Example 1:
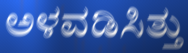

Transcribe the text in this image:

ಅಳವಡಿಸಿತ್ತು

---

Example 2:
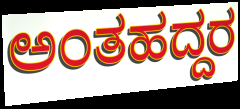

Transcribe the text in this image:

ಅಂತಹದ್ದರ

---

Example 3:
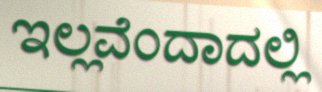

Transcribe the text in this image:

ಇಲ್ಲವೆಂದಾದಲ್ಲಿ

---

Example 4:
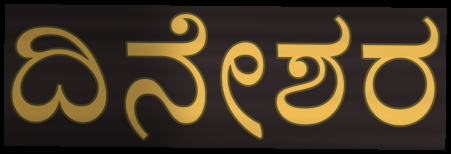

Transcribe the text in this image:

ದಿನೇಶರ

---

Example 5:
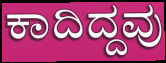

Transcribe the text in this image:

ಕಾದಿದ್ದವು